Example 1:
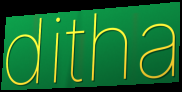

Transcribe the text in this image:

ditha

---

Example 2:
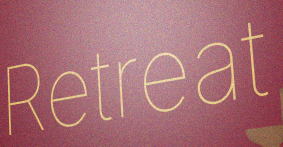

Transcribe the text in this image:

Retreat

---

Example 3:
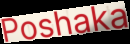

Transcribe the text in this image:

Poshaka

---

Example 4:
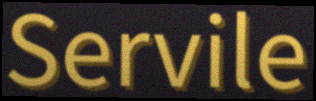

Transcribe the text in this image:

Servile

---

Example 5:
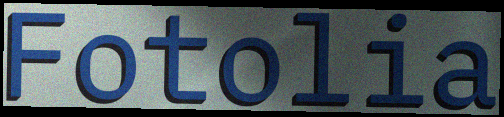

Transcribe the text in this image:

Fotolia